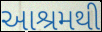
આશ્રમથી